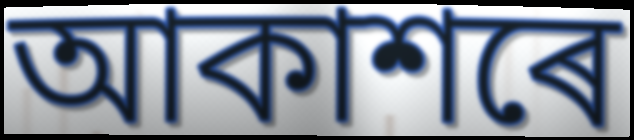
আকাশৰে